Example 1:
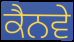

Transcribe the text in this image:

ਕੈਨਵੇ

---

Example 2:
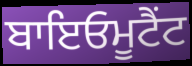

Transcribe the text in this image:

ਬਾਇਓਮੂਟੈਂਟ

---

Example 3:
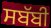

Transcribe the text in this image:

ਸਬੱਬੀ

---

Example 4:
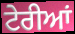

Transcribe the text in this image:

ਟੇਰੀਆਂ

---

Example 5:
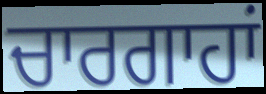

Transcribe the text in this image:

ਚਾਰਗਾਹਾਂ